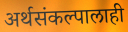
अर्थसंकल्पालाही